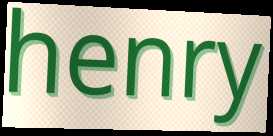
henry